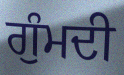
ਗੁੰਮਦੀ